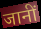
जानीं